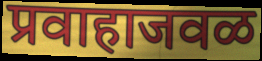
प्रवाहाजवळ